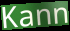
Kann